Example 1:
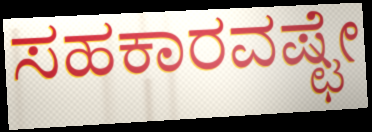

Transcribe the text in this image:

ಸಹಕಾರವಷ್ಟೇ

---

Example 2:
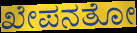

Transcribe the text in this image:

ಖೇಪನತೋ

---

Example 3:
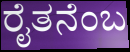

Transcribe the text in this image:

ರೈತನೆಂಬ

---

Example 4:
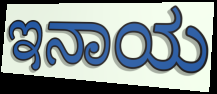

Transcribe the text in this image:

ಇನಾಯ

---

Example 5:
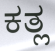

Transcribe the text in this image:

ಕತ್ಲ